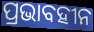
ପ୍ରଭାବହୀନ